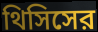
থিসিসের